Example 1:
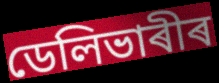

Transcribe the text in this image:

ডেলিভাৰীৰ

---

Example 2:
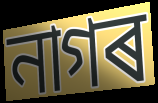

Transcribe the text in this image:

নাগৰ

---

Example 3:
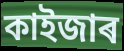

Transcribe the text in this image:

কাইজাৰ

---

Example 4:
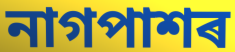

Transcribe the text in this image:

নাগপাশৰ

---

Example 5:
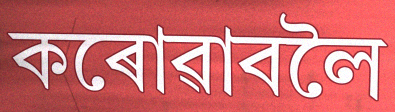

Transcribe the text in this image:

কৰোৱাবলৈ